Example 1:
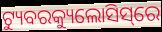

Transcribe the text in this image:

ଟ୍ୟୁବରକ୍ୟୁଲୋସିସ୍‌ରେ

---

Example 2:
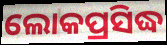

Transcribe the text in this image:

ଲୋକପ୍ରସିଦ୍ଧ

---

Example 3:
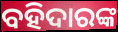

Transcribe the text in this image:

ବହିଦାରଙ୍କ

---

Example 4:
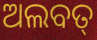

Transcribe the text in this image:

ଅଲବତ୍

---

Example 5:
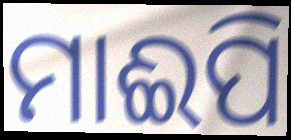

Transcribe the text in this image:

ମାଈପି